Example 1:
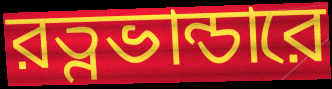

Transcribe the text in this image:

রত্নভান্ডারে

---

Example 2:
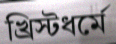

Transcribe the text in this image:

খ্রিস্টধর্মে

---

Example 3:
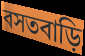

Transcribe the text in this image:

বসতবাড়ি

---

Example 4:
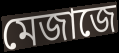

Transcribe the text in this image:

মেজাজে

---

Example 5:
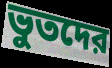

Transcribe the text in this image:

ভুতদের